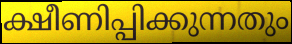
ക്ഷീണിപ്പിക്കുന്നതും